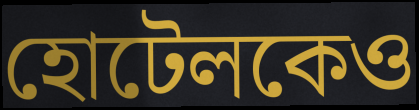
হোটেলকেও